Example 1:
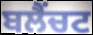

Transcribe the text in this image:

ਬਲੈਂਚਟ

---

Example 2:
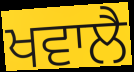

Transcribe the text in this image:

ਖਵਾਲੈ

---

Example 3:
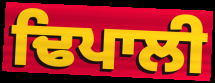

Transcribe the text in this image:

ਢਿਪਾਲੀ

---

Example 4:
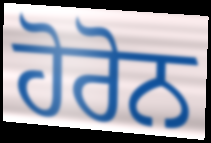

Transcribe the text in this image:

ਹੋਰੋਨ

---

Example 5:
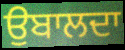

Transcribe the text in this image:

ਉਬਾਲਦਾ